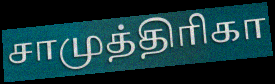
சாமுத்திரிகா